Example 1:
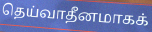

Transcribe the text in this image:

தெய்வாதீனமாகக்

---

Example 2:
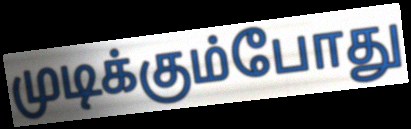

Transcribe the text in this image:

முடிக்கும்போது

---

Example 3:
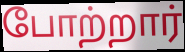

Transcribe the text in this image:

போற்றார்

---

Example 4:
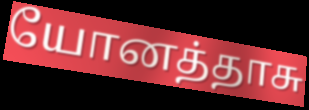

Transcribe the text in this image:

யோனத்தாசு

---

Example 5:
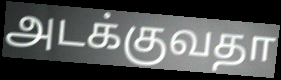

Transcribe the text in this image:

அடக்குவதா